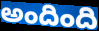
అందింది